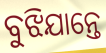
ବୁଝିଯାନ୍ତେ